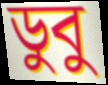
ডুবু